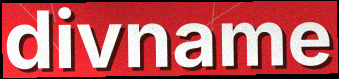
divname